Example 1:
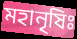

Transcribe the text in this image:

মহানৃষিঃ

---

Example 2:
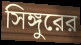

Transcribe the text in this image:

সিঙ্গুরের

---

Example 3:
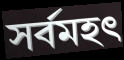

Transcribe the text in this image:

সর্বমহৎ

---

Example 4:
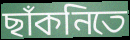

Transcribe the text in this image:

ছাঁকনিতে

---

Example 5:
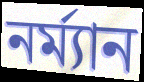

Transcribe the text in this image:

নর্ম্যান